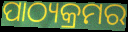
ପାଠ୍ୟକ୍ରମର